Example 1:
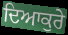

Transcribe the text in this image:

ਦਿਆਕੁਰੇ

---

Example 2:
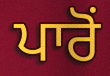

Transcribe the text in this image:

ਪਾਰੋਂ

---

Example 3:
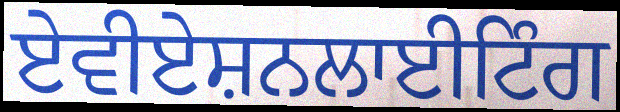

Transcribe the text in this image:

ਏਵੀਏਸ਼ਨਲਾਈਟਿੰਗ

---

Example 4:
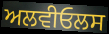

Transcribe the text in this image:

ਅਲਵੀਓਲਸ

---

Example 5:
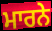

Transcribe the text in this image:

ਮਾਰਨੇ